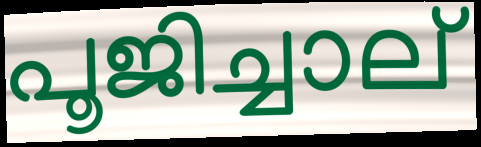
പൂജിച്ചാല്